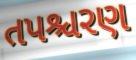
તપશ્ચરણ